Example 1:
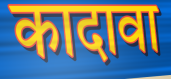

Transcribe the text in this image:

कादावा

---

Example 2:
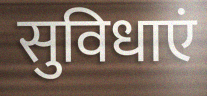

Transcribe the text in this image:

सुविधाएं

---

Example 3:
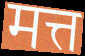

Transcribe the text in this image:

मत्त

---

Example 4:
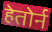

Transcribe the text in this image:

हेतोर्न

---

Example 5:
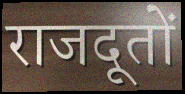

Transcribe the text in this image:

राजदूतों